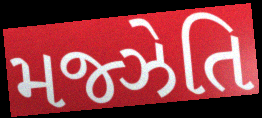
મજ્ઝેતિ